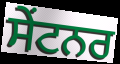
ਸੇਂਟਨਰ